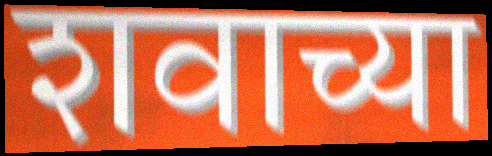
शवाच्या